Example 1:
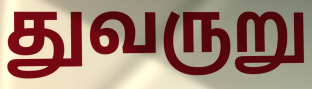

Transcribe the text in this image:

துவருறு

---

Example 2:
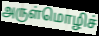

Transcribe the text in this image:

அருள்மொழிச்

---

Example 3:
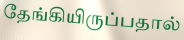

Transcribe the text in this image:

தேங்கியிருப்பதால்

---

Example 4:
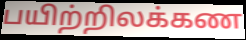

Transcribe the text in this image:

பயிற்றிலக்கண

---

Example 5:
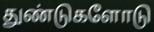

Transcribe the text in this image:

துண்டுகளோடு